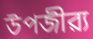
উপজীৱ্য